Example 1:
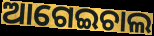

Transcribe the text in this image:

ଆଗେଇଚାଲ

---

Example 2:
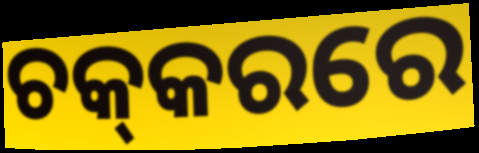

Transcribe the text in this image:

ଚକ୍‌କରରେ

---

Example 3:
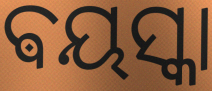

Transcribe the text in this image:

ଵୟସ୍କା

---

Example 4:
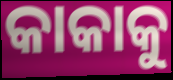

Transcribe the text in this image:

କାକାକୁ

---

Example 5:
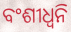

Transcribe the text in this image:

ବଂଶୀଧ୍ବନି